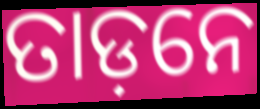
ତାଡ଼ନେ